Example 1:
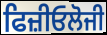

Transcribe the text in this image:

ਫਿਜ਼ੀਓਲੋਜੀ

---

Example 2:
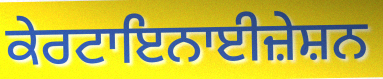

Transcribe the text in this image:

ਕੇਰਟਾਇਨਾਈਜ਼ੇਸ਼ਨ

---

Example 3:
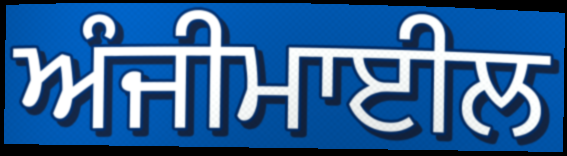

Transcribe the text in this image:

ਅੰਜੀਮਾਈਲ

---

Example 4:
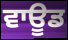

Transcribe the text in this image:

ਵਾਊਡ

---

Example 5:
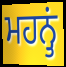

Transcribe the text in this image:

ਮਹਨ੍ਤਂ